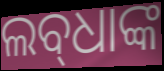
ଲବ୍‌ଧାଙ୍କ